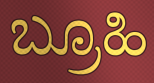
ಬ್ರೂಹಿ